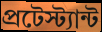
প্রটেস্ট্যান্ট